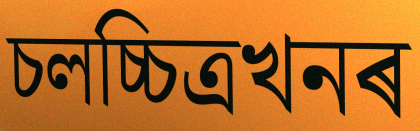
চলচ্চিত্ৰখনৰ